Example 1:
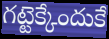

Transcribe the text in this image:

గట్టెక్కేందుకే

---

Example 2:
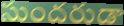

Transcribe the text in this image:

సుందరుడా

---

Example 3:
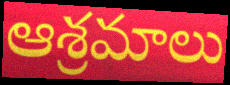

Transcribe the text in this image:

ఆశ్రమాలు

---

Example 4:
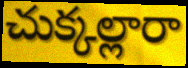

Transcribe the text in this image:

చుక్కల్లారా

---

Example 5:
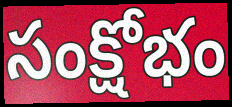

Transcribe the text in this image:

సంక్షోభం